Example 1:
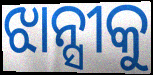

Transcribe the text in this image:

ଝାନ୍ସୀକୁ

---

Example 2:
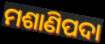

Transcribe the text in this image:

ମଶାଣିପଦା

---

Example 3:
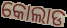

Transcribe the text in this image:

କୋଲାଡ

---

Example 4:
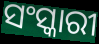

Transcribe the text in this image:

ସଂସ୍କାରୀ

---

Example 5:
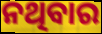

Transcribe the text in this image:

ନଥିବାର